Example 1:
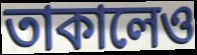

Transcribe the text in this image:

তাকালেও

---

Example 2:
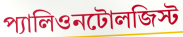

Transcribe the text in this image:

প্যালিওনটোলজিস্ট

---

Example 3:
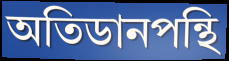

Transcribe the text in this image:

অতিডানপন্থি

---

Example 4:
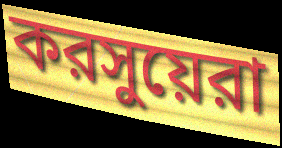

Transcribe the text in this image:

করসুয়েরা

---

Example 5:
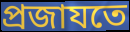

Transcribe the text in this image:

প্রজাযতে